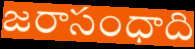
జరాసంధాది